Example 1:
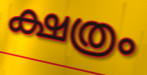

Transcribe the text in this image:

ക്ഷത്രം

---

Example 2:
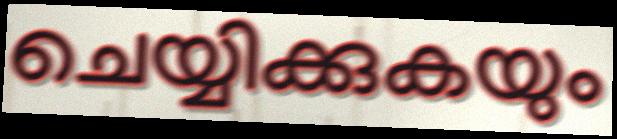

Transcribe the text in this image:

ചെയ്യിക്കുകയും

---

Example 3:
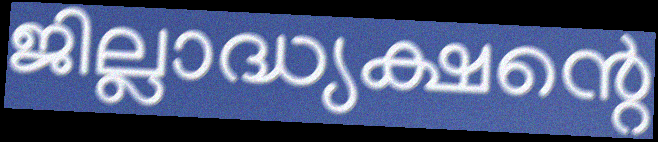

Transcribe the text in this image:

ജില്ലാദ്ധ്യക്ഷന്റെ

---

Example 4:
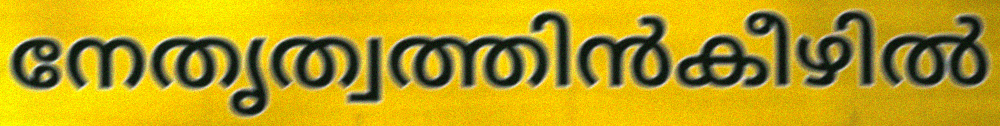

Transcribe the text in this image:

നേതൃത്വത്തിൻകീഴിൽ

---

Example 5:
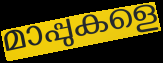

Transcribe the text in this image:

മാപ്പുകളെ